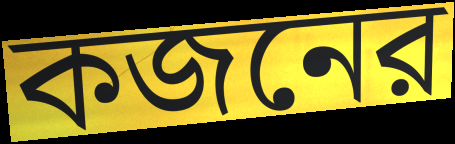
কজনের